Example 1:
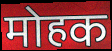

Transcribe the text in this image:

मोहक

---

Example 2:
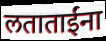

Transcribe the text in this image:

लताताईंना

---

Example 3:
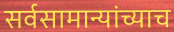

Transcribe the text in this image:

सर्वसामान्यांच्याच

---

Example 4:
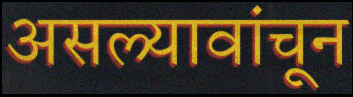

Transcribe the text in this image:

असल्यावांचून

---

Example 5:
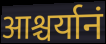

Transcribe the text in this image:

आश्चर्यानं